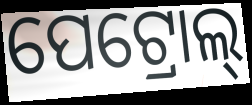
ପେଟ୍ରୋଲ୍